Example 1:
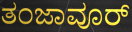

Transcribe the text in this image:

ತಂಜಾವೂರ್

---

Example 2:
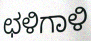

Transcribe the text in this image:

ಛಳಿಗಾಳಿ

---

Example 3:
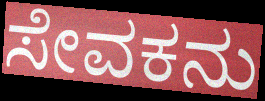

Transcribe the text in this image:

ಸೇವಕನು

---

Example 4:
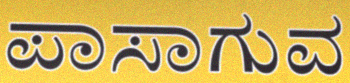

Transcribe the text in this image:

ಪಾಸಾಗುವ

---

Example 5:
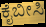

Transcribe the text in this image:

ಕೈಬೀಸಿ